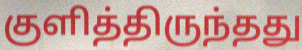
குளித்திருந்தது